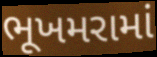
ભૂખમરામાં